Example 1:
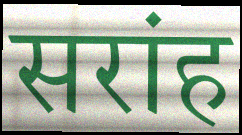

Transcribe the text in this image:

सरांह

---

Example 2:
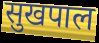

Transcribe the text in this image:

सुखपाल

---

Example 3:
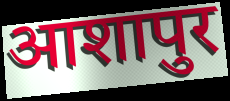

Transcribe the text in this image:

आशापुर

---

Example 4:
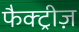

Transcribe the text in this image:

फैक्ट्रीज़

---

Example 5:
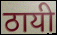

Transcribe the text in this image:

ठायी